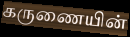
கருணையின்